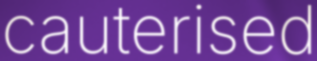
cauterised